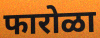
फारोळा